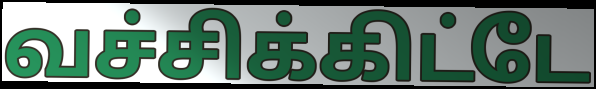
வச்சிக்கிட்டே